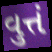
વુત્તં